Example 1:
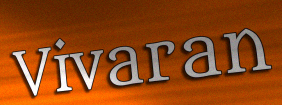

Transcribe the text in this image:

Vivaran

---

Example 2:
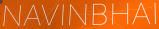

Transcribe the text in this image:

NAVINBHAI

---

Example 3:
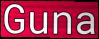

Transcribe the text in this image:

Guna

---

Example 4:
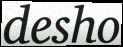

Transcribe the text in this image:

desho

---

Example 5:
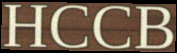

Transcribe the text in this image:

HCCB